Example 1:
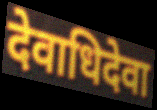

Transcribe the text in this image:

देवाधिदेवा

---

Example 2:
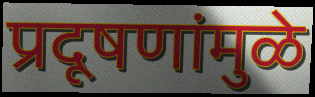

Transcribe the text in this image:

प्रदूषणांमुळे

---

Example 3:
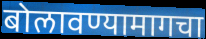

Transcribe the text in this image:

बोलावण्यामागचा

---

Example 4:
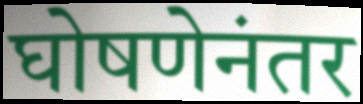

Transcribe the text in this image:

घोषणेनंतर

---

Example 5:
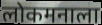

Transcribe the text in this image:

लोकमनाला